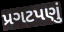
પ્રગટપણું